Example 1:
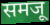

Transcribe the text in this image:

समजू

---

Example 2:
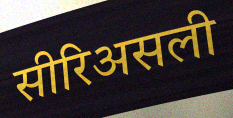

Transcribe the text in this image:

सीरिअसली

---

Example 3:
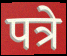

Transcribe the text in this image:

पत्रे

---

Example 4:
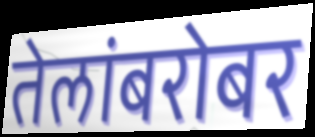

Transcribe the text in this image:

तेलांबरोबर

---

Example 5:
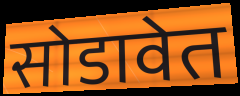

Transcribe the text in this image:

सोडावेत